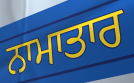
ਨਾਮਾਤਾਰ